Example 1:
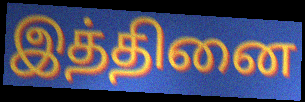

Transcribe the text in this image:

இத்தினை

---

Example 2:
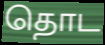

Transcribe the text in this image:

தொட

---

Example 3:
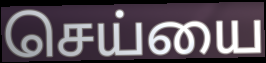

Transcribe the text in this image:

செய்யை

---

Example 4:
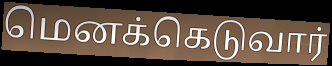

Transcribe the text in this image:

மெனக்கெடுவார்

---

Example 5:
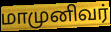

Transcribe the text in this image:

மாமுனிவர்